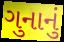
ગુનાનું